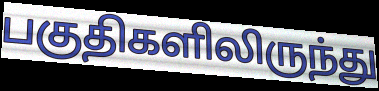
பகுதிகளிலிருந்து